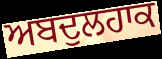
ਅਬਦੁਲਹਾਕ